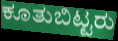
ಕೂತುಬಿಟ್ಟರು